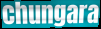
chungara